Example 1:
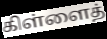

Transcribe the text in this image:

கிள்ளைத்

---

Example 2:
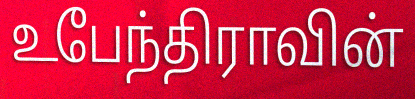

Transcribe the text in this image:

உபேந்திராவின்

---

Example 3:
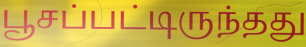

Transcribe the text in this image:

பூசப்பட்டிருந்தது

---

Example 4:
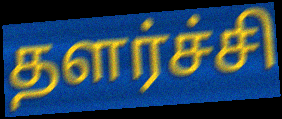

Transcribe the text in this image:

தளர்ச்சி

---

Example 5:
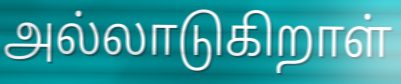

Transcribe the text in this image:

அல்லாடுகிறாள்